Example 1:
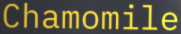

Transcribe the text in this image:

Chamomile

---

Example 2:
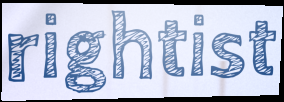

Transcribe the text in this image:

rightist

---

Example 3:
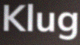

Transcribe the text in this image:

Klug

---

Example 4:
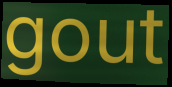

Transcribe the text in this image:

gout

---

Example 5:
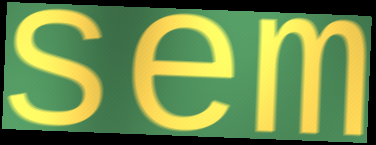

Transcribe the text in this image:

sem